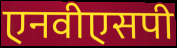
एनवीएसपी